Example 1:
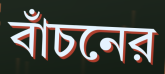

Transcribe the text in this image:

বাঁচনের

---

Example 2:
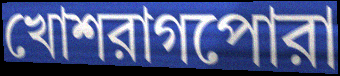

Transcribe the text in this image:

খোশরাগপোরা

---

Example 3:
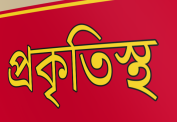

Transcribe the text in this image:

প্রকৃতিস্থ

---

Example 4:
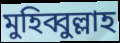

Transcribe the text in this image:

মুহিব্বুল্লাহ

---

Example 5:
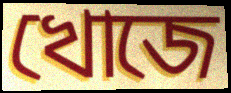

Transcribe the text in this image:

খোজে